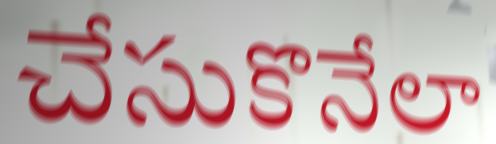
చేసుకొనేలా